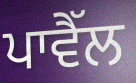
ਪਾਵੈੱਲ